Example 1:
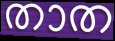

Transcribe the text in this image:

താത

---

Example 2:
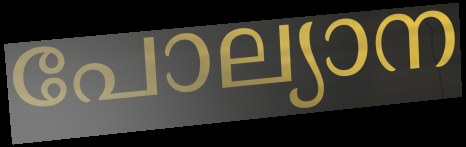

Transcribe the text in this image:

പോല്യാന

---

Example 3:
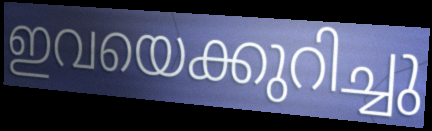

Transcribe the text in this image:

ഇവയെക്കുറിച്ചു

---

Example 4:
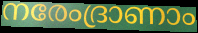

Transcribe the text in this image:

നരേംദ്രാണാം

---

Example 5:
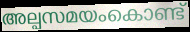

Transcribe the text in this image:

അല്പസമയംകൊണ്ട്